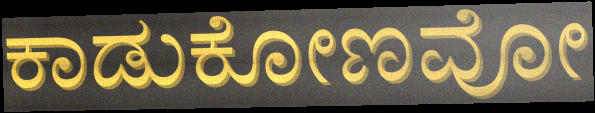
ಕಾಡುಕೋಣವೋ